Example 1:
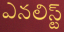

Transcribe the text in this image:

ఎనలిస్ట్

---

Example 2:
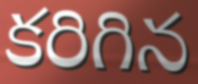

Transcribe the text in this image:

కరిగిన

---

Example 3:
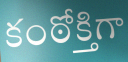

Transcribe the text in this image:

కంఠోక్తిగా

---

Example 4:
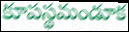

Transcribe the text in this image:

కూపస్థమండూక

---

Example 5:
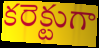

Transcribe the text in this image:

కరెక్టుగా